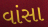
વાંસા